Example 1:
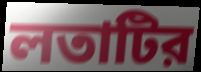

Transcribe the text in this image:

লতাটির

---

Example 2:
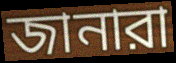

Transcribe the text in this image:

জানারা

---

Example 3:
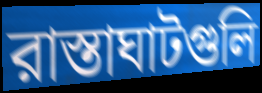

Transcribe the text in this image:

রাস্তাঘাটগুলি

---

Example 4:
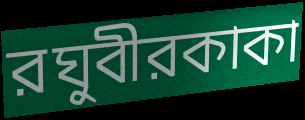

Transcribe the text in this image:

রঘুবীরকাকা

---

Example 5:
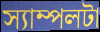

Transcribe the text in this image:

স্যাম্পলটা